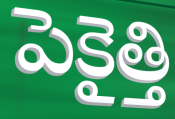
పెకైత్తి